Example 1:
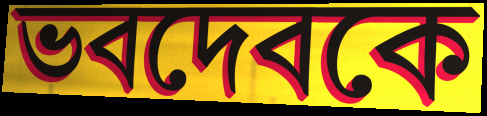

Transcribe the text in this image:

ভবদেবকে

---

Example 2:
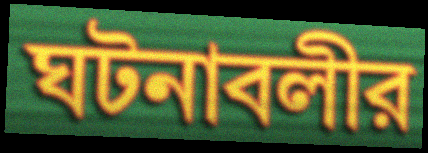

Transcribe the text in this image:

ঘটনাবলীর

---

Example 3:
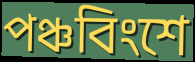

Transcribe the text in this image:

পঞ্চবিংশে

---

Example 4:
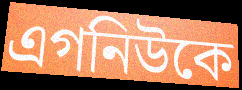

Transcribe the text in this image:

এগনিউকে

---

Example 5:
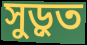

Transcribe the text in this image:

সুড়ুত